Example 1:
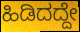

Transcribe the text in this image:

ಹಿಡಿದದ್ದೇ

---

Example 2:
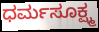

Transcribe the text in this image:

ಧರ್ಮಸೂಕ್ಷ್ಮ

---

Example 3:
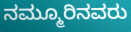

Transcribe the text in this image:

ನಮ್ಮೂರಿನವರು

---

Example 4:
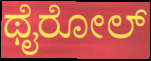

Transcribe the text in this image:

ಥೈರೋಲ್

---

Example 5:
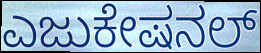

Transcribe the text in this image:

ಎಜುಕೇಷನಲ್